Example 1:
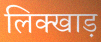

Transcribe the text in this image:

लिक्खाड़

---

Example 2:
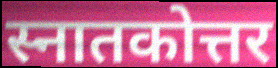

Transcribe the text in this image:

स्नातकोत्तर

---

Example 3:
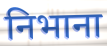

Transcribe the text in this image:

निभाना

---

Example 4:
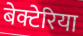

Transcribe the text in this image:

बेक्टेरिया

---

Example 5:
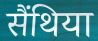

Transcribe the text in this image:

सैंथिया